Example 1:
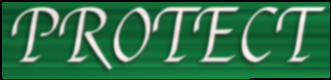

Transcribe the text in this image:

PROTECT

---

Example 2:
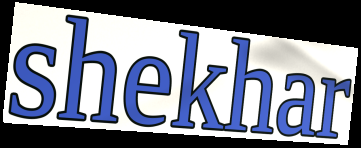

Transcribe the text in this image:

shekhar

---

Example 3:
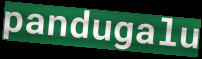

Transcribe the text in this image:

pandugalu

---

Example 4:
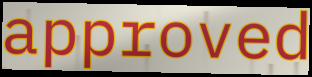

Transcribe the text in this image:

approved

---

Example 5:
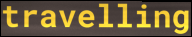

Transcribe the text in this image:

travelling